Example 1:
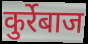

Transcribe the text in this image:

कुर्रेबाज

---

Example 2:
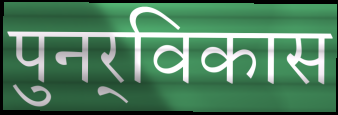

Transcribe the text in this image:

पुनर्विकास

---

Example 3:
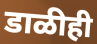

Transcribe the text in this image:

डाळीही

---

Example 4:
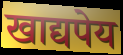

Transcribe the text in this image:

खाद्यपेय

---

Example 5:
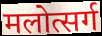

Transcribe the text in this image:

मलोत्सर्ग